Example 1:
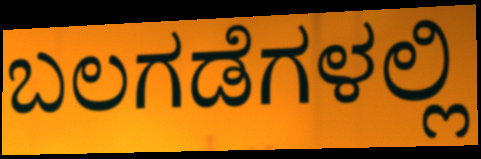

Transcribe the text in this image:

ಬಲಗಡೆಗಳಲ್ಲಿ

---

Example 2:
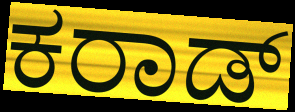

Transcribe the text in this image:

ಕರಾಡ್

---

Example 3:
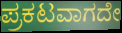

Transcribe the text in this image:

ಪ್ರಕಟವಾಗದೇ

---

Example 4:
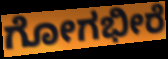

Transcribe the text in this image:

ಗೋಗಭೀರೆ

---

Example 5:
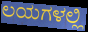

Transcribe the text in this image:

ಲಯಗಳಲ್ಲಿ